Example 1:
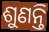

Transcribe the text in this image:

ଶୁଣନ୍ତି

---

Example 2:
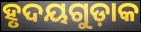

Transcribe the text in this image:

ହୃଦୟଗୁଡ଼ାକ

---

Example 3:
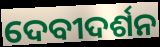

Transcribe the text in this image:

ଦେବୀଦର୍ଶନ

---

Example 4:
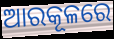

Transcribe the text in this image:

ଆରକୂଳରେ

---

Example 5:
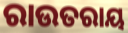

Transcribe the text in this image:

ରାଉତରାୟ